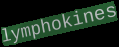
lymphokines